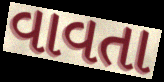
વાવતા